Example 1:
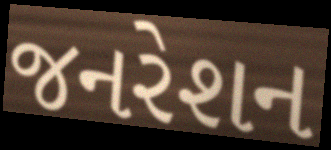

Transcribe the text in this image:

જનરેશન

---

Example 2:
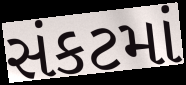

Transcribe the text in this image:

સંકટમાં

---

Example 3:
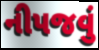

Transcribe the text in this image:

નીપજવું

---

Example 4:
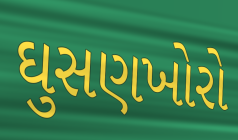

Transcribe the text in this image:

ઘુસણખોરો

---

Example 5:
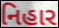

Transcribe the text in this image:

નિહાર